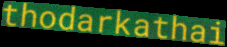
thodarkathai